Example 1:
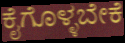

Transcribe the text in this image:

ಕೈಗೊಳ್ಳಬೇಕೆ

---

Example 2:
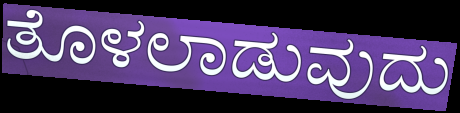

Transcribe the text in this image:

ತೊಳಲಾಡುವುದು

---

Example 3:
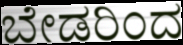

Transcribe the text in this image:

ಬೇಡರಿಂದ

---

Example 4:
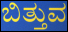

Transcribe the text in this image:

ಬಿತ್ತುವ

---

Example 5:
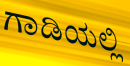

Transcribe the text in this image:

ಗಾಡಿಯಲ್ಲಿ